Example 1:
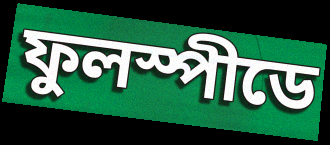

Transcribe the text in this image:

ফুলস্পীডে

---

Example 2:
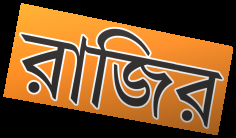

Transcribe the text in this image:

রাজির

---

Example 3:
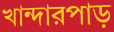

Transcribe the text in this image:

খান্দারপাড়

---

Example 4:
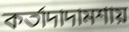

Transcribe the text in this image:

কর্তাদাদামশায়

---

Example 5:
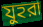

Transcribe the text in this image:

যুহরা